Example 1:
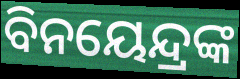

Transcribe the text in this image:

ବିନୟେନ୍ଦ୍ରଙ୍କ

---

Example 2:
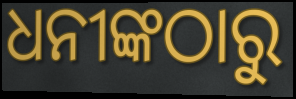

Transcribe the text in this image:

ଧନୀଙ୍କଠାରୁ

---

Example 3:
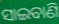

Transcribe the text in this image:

ସାଇବାଣି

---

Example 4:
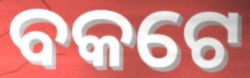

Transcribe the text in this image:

ବକଟେ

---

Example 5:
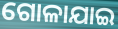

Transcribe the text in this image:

ଗୋଳାଯାଇ